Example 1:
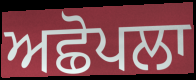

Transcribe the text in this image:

ਅਛੋਪਲਾ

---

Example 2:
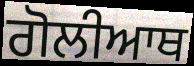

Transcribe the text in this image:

ਗੋਲੀਆਥ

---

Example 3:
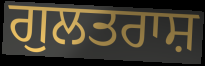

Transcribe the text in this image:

ਗੁਲਤਰਾਸ਼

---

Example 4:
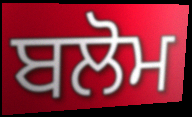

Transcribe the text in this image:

ਬਲੋਮ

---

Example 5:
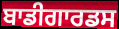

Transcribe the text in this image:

ਬਾਡੀਗਾਰਡਸ